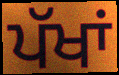
ਪੱਖਾਂ